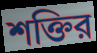
শক্তির